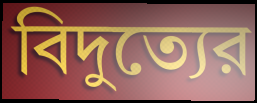
বিদুত্যের